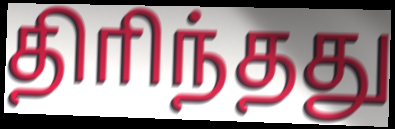
திரிந்தது